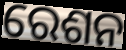
ରେଶନ